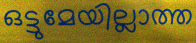
ഒട്ടുമേയില്ലാത്ത